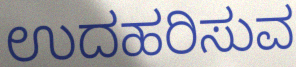
ಉದಹರಿಸುವ